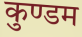
कुण्डम